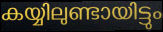
കയ്യിലുണ്ടായിട്ടും